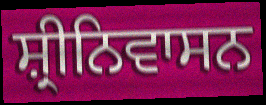
ਸ਼੍ਰੀਨਿਵਾਸਨ